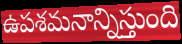
ఉపశమనాన్నిస్తుంది